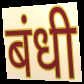
बंधी